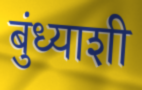
बुंध्याशी